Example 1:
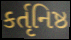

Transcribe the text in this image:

કર્તૃનિષ્ઠ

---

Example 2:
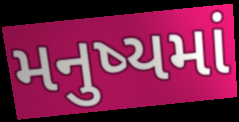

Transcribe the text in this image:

મનુષ્યમાં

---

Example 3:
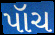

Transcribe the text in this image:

પૉચ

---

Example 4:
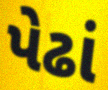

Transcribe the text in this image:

પેઢાં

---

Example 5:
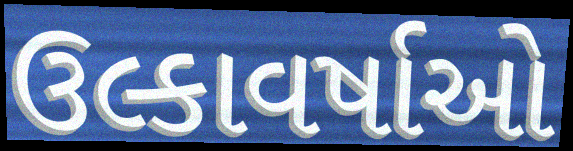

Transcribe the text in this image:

ઉલ્કાવર્ષાઓ